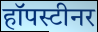
हॉपस्टीनर